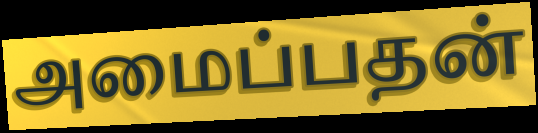
அமைப்பதன்